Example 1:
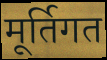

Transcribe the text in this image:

मूर्तिगत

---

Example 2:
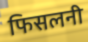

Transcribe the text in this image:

फिसलनी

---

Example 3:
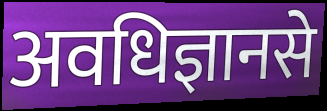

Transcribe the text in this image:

अवधिज्ञानसे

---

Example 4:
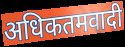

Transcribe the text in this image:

अधिकतमवादी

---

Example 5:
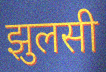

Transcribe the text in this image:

झुलसी